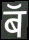
बॅ